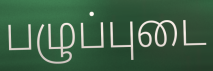
பழுப்புடை